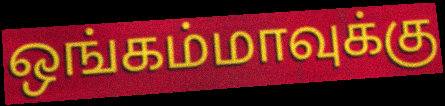
ஒங்கம்மாவுக்கு